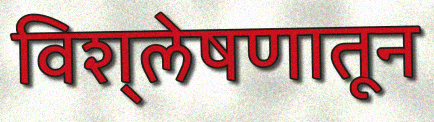
विश्लेषणातून